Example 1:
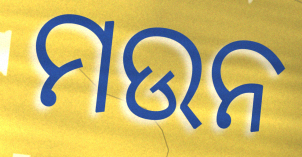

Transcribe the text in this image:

ମଉନ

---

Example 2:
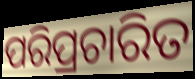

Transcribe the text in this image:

ପରିପ୍ରଚାରିତ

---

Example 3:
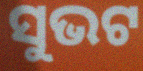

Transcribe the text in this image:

ସୁଭଟ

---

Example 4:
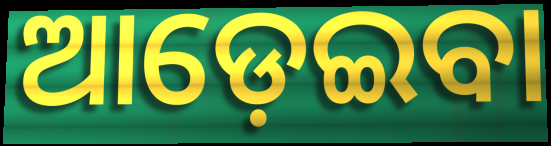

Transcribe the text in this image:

ଆଡ଼େଇବା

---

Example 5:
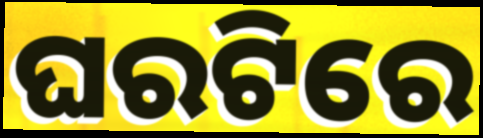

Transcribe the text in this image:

ଘରଟିରେ